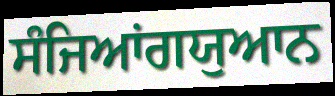
ਸੰਜਿਆਂਗਯੁਆਨ